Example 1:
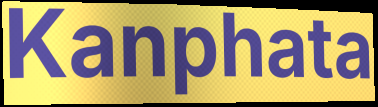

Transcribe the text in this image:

Kanphata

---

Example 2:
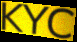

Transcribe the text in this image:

KYC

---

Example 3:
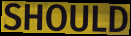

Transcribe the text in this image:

SHOULD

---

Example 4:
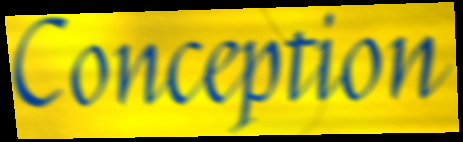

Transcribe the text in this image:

Conception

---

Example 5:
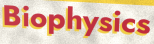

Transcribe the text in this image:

Biophysics